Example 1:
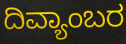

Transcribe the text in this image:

ದಿವ್ಯಾಂಬರ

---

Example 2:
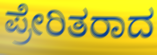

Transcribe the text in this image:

ಪ್ರೇರಿತರಾದ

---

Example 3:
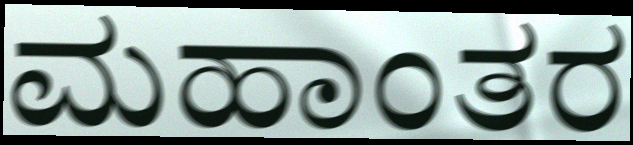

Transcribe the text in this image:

ಮಹಾಂತರ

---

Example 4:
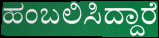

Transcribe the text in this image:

ಹಂಬಲಿಸಿದ್ದಾರೆ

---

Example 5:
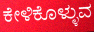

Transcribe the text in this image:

ಕೇಳಿಕೊಳ್ಳುವ